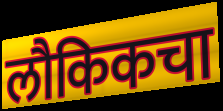
लौकिकचा